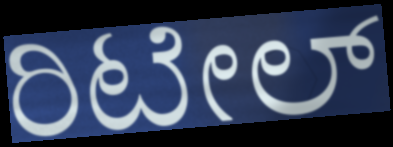
ರಿಟೇಲ್